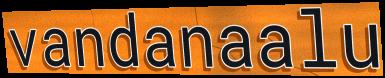
vandanaalu